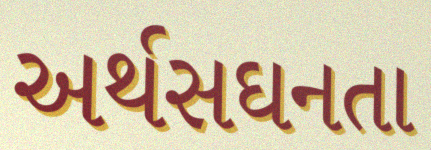
અર્થસઘનતા